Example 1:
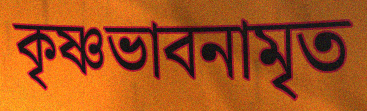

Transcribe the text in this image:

কৃষ্ণভাবনামৃত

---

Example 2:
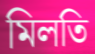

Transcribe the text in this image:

মিলতি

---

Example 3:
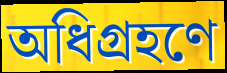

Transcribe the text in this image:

অধিগ্রহণে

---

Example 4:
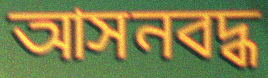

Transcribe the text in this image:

আসনবদ্ধ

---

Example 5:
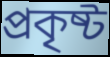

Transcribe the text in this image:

প্রকৃষ্ট